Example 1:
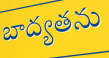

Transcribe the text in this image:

బాద్యతను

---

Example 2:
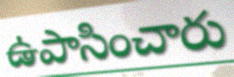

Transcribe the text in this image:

ఉపాసించారు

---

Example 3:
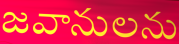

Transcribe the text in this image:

జవానులను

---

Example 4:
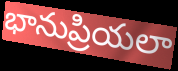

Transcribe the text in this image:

భానుప్రియలా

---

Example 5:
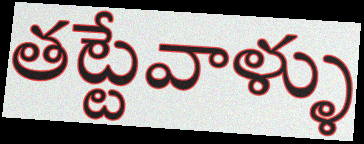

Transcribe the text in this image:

తట్టేవాళ్ళు